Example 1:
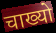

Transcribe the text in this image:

चाख्यो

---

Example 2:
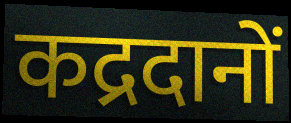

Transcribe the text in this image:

कद्रदानों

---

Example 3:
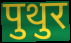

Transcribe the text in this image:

पुथुर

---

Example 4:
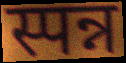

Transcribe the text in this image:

स्पन्न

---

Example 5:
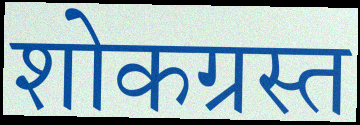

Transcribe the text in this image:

शोकग्रस्त